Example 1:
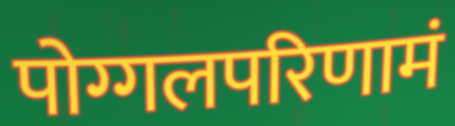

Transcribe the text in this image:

पोग्गलपरिणामं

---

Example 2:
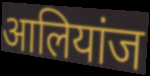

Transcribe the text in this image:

आलियांज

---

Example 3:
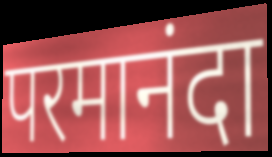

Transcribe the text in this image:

परमानंदा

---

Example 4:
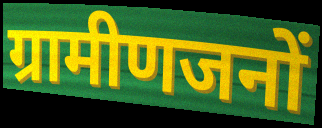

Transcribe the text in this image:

ग्रामीणजनों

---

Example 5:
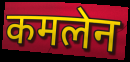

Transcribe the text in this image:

कमलेन